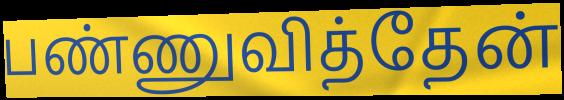
பண்ணுவித்தேன்